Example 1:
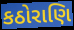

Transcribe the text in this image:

કઠોરાણિ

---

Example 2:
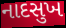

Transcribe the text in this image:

નાદસુખ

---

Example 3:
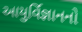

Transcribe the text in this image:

આયુર્વિજ્ઞાનનો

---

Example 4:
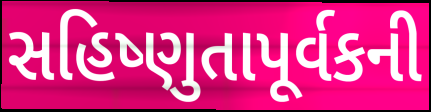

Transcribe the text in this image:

સહિષ્ણુતાપૂર્વકની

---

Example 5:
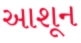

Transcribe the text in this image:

આશૂન